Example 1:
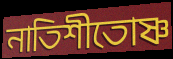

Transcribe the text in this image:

নাতিশীতোষ্ণ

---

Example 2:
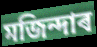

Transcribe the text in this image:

মজিন্দাৰ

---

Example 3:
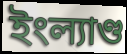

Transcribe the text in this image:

ইংল্যাণ্ড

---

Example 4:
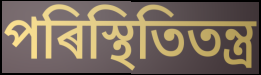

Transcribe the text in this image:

পৰিস্থিতিতন্ত্ৰ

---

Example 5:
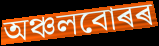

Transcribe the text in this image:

অঞ্চলবোৰৰ